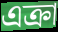
এক্রা